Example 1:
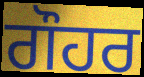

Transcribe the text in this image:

ਗੌਹਰ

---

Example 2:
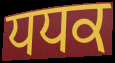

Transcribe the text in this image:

ਧਧਕ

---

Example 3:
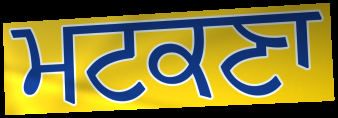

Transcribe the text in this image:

ਮਟਕਣਾ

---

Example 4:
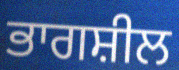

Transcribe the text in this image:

ਭਾਗਸ਼ੀਲ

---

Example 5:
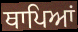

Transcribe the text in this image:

ਥਾਪਿਆਂ